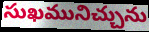
సుఖమునిచ్చును